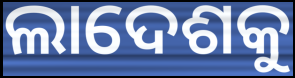
ଲାଦେଶକୁ